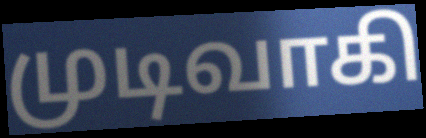
முடிவாகி